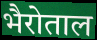
भैरोताल